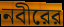
নবীরের